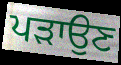
ਪੜਾਉਣ